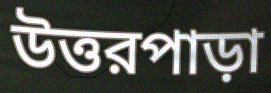
উত্তরপাড়া